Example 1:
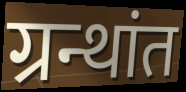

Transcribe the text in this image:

ग्रन्थांत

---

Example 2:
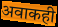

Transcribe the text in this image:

अवाकही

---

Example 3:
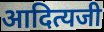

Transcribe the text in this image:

आदित्यजी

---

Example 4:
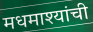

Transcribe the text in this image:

मधमाश्‍यांची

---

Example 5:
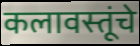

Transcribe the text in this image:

कलावस्तूंचे